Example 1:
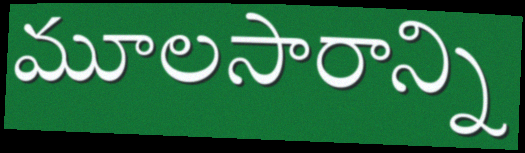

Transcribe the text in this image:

మూలసారాన్ని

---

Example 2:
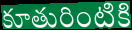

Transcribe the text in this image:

కూతురింటికి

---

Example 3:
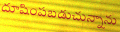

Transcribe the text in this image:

దూషింపబడుచున్నాను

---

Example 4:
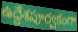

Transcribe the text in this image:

ఉద్దేశపూర్వకంగా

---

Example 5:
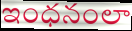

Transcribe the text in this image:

ఇంధనంలా